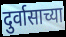
दुर्वासाच्या